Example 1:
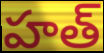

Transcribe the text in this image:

హత్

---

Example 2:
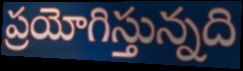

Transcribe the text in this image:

ప్రయోగిస్తున్నది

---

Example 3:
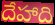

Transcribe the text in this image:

దేహాది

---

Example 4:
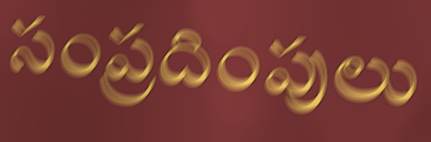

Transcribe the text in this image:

సంప్రదింపులు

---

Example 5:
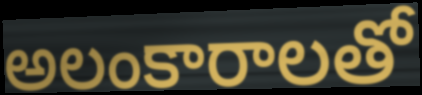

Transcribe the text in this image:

అలంకారాలతో